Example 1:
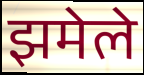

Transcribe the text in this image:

झमेले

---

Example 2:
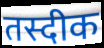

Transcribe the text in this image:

तस्दीक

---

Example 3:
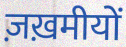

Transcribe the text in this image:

ज़ख़मीयों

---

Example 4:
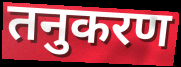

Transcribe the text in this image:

तनुकरण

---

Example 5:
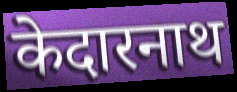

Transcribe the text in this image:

केदारनाथ